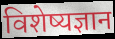
विशेष्यज्ञान